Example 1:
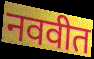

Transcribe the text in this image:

नववीत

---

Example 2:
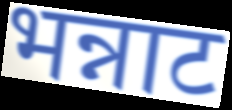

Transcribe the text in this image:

भन्नाट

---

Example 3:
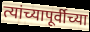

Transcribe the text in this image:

त्यांच्यापूर्वीच्या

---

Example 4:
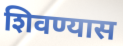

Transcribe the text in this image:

शिवण्यास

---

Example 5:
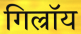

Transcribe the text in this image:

गिल्रॉय